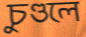
চুণ্ডলে